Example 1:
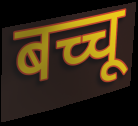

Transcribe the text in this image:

बच्चू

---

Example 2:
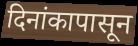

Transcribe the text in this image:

दिनांकापासून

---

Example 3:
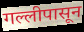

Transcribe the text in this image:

गल्लीपासून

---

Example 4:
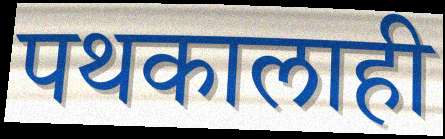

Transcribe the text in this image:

पथकालाही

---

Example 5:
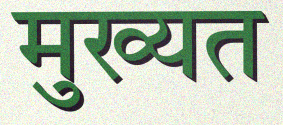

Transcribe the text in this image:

मुख्यत